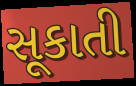
સૂકાતી